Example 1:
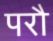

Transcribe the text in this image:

परौ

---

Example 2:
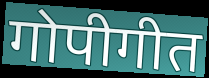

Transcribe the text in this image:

गोपीगीत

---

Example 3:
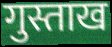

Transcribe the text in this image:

गुस्ताख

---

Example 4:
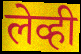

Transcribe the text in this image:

लेव्ही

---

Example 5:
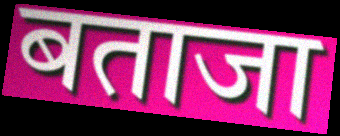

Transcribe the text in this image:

बताजा